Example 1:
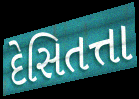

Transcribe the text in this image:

દેસિતત્તા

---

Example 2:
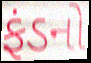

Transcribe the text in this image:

ફંડનો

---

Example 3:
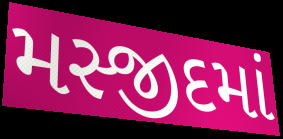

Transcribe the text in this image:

મસ્જીદમાં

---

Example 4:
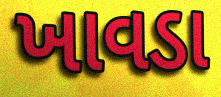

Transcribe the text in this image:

ખાવડા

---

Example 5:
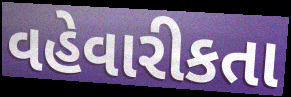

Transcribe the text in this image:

વહેવારીકતા